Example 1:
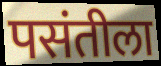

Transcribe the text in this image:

पसंतीला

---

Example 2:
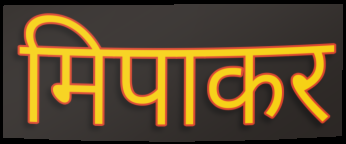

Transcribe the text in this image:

मिपाकर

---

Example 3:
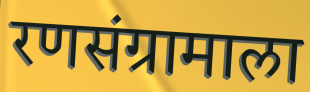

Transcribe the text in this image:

रणसंग्रामाला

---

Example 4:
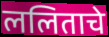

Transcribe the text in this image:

ललिताचे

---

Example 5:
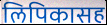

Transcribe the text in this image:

लिपिकासह